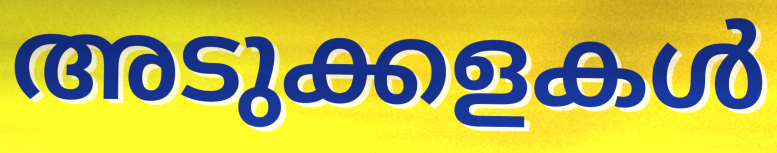
അടുക്കളകൾ